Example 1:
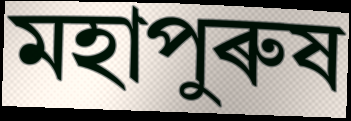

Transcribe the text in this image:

মহাপুৰুষ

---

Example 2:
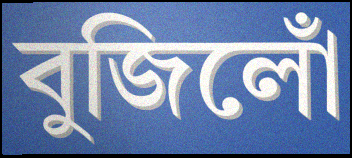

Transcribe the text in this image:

বুজিলোঁ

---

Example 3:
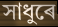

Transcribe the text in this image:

সাধুৰে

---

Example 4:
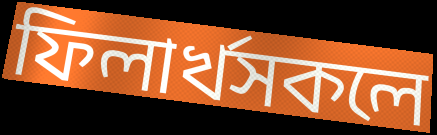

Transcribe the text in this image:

ফিলাৰ্খসকলে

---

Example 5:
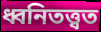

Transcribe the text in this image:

ধ্বনিতত্ত্বত